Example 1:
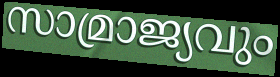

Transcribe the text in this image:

സാമ്രാജ്യവും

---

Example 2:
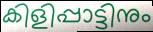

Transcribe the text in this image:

കിളിപ്പാട്ടിനും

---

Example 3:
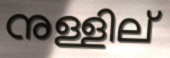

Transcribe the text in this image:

നുള്ളില്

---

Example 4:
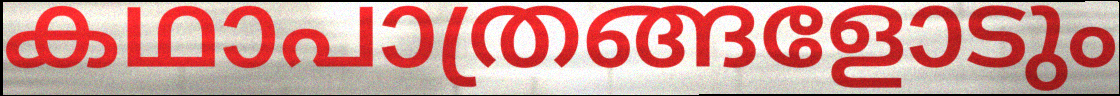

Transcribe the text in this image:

കഥാപാത്രങ്ങളോടും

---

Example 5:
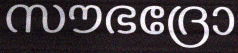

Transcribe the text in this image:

സൗഭദ്രോ